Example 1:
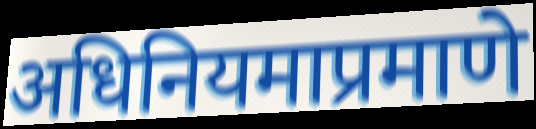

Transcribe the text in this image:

अधिनियमाप्रमाणे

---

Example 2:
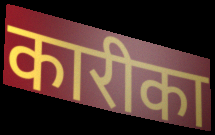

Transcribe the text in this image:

कारीका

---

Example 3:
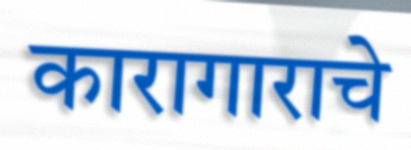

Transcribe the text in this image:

कारागाराचे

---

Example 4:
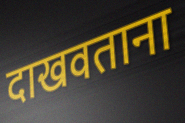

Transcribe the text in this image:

दाखवताना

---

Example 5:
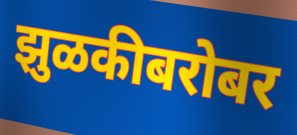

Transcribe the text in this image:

झुळकीबरोबर